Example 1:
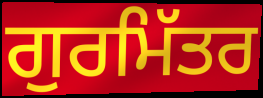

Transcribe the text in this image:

ਗੁਰਮਿੱਤਰ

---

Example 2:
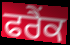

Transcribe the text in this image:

ਫਰੈਂਕ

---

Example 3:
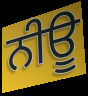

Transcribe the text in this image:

ਨੀਊ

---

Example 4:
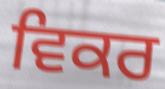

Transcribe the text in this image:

ਵਿਕਰ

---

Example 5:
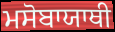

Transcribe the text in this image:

ਮਸੋਬਾਯਾਥੀ